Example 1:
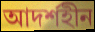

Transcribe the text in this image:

আদৰ্শহীন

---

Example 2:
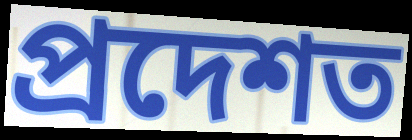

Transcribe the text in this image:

প্ৰদেশত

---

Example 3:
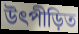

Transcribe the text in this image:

উৎপীড়িত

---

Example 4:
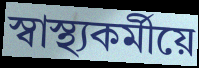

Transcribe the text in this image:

স্বাস্থ্যকৰ্মীয়ে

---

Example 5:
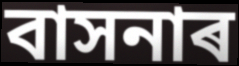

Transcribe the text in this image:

বাসনাৰ